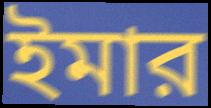
ইমার